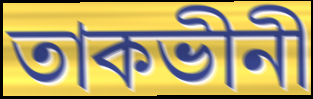
তাকভীনী